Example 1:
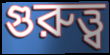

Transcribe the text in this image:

গুৰুত্ত্ব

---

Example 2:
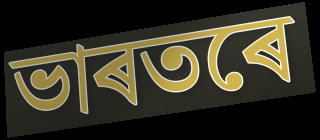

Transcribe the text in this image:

ভাৰতৰে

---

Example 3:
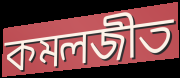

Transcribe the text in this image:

কমলজীত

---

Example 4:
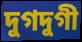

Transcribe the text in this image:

দুগদুগী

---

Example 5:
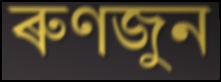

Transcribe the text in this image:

ৰুণজুন